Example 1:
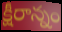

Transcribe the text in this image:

క్షీరాన్నం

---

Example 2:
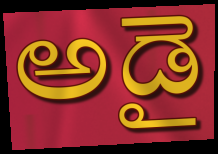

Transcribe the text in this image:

అడై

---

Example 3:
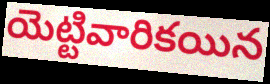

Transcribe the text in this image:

యెట్టివారికయిన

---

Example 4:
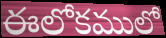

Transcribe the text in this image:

ఈలోకములో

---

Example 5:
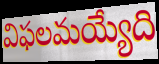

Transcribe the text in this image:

విఫలమయ్యేది